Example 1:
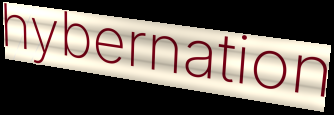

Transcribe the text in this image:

hybernation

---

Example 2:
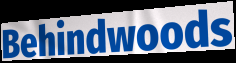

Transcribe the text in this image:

Behindwoods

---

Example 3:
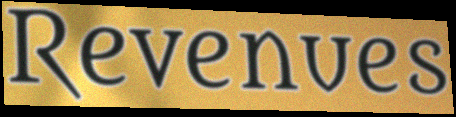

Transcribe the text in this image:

Revenues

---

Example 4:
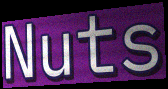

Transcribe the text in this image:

Nuts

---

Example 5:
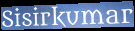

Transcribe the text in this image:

Sisirkumar